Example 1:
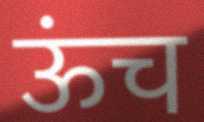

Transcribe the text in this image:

ऊंच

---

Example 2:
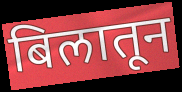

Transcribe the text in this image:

बिलातून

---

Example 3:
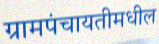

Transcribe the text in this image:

ग्रामपंचायतीमधील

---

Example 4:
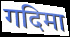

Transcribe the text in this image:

गदिमा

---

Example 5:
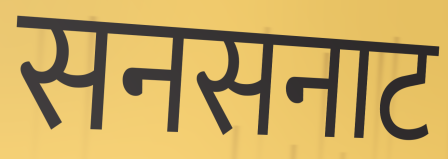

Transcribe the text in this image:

सनसनाट